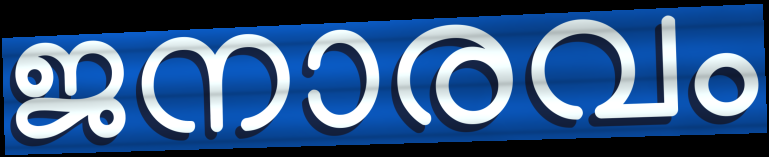
ജനാരവം